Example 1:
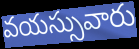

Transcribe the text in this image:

వయస్సువారు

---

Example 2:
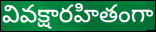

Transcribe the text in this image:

వివక్షారహితంగా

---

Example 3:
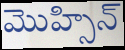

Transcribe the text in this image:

మొహ్సిన్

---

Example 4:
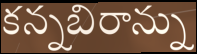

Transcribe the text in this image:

కన్నబిరాన్ను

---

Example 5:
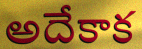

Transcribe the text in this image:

అదేకాక